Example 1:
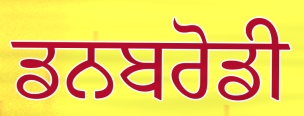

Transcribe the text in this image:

ਡਨਬਰੋਡੀ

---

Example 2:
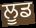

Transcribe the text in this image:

ਲੂਡ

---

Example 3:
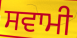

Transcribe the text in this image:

ਸਵਾਮੀ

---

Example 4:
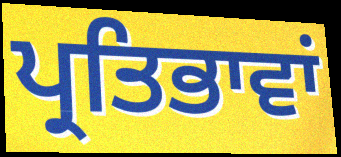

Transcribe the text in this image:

ਪ੍ਰਤਿਭਾਵਾਂ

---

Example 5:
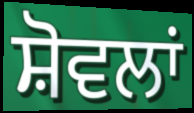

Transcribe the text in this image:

ਸ਼ੋਵਲਾਂ